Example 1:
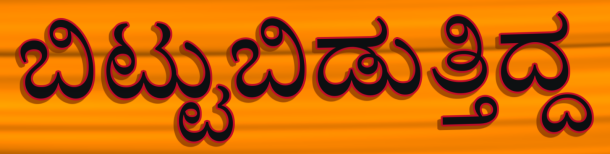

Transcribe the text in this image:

ಬಿಟ್ಟುಬಿಡುತ್ತಿದ್ದ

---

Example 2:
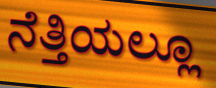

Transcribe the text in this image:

ನೆತ್ತಿಯಲ್ಲೂ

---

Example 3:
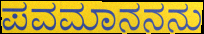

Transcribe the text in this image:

ಪವಮಾನನನು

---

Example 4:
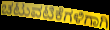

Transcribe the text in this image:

ಚಟುವಟಿಕೆಗಳಿಗಾಗಿ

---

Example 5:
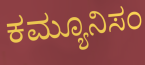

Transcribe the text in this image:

ಕಮ್ಯೂನಿಸಂ